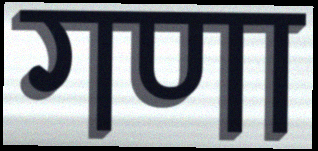
गणा